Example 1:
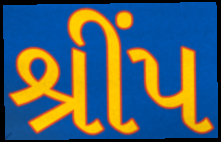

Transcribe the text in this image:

શ્રીંપ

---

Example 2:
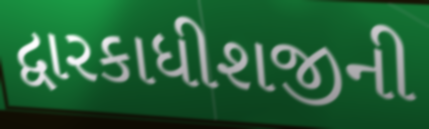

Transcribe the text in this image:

દ્વારકાધીશજીની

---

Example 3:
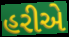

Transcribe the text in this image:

હરીએ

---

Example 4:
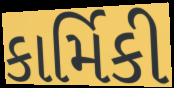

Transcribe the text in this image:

કાર્મિકી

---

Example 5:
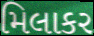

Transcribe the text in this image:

મિલાકર